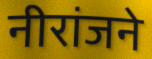
नीरांजने